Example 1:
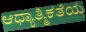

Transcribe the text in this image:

ಆಧ್ಯಾತ್ಮಿಕತೆಯ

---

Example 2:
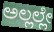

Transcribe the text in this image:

ಅಲ್ಲಲ್ಲೇ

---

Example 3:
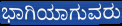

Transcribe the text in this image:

ಭಾಗಿಯಾಗುವರು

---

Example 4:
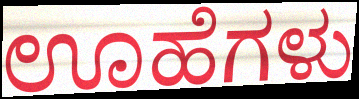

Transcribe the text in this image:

ಊಹೆಗಳು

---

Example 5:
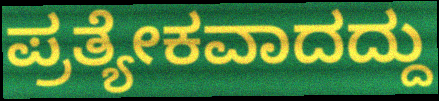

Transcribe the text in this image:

ಪ್ರತ್ಯೇಕವಾದದ್ದು